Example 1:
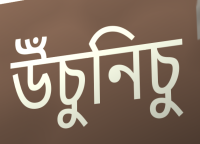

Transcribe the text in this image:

উঁচুনিচু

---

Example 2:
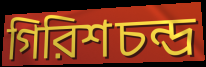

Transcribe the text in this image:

গিরিশচন্দ্র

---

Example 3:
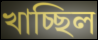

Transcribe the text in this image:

খাচ্ছিল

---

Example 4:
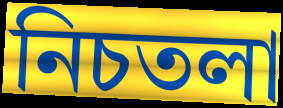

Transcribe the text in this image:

নিচতলা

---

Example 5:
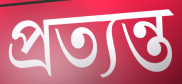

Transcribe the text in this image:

প্রত্যন্ত